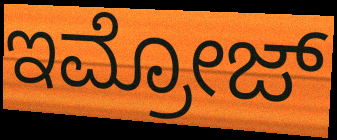
ಇಮ್ರೋಜ್